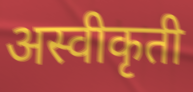
अस्वीकृती